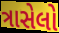
ત્રાસેલો